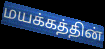
மயக்கத்தின்